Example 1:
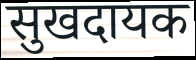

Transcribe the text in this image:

सुखदायक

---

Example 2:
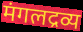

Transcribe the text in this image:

मंगलद्रव्य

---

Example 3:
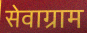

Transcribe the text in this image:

सेवाग्राम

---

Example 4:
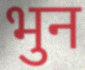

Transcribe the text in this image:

भुन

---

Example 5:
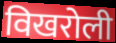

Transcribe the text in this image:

विखरोली